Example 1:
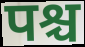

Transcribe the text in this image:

पश्च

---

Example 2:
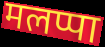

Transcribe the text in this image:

मलप्पा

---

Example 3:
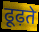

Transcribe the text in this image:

ढूढ़ते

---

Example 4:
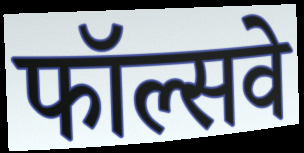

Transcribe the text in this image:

फॉल्सवे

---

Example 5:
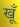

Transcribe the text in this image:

खूँ